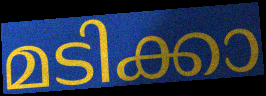
മടിക്കാ